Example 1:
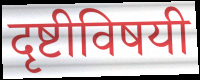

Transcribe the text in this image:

दृष्टीविषयी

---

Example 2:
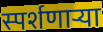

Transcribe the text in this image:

स्पर्शणाऱ्या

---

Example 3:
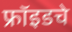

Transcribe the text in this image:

फ्रॉइडचे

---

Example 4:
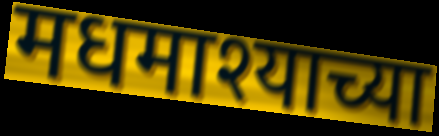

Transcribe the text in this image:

मधमाश्याच्या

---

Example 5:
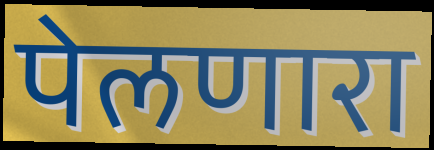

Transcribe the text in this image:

पेलणारा